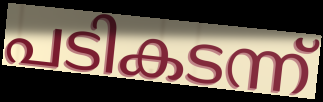
പടികടന്ന്